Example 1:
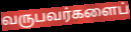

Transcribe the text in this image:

வருபவர்களைப்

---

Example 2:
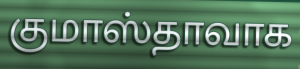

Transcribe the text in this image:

குமாஸ்தாவாக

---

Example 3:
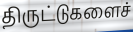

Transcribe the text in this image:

திருட்டுகளைச்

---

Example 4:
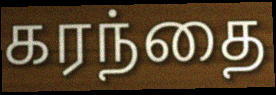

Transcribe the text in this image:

கரந்தை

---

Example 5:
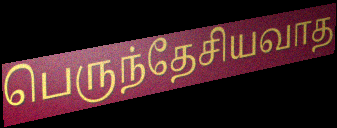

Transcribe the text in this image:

பெருந்தேசியவாத